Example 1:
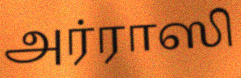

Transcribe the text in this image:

அர்ராஸி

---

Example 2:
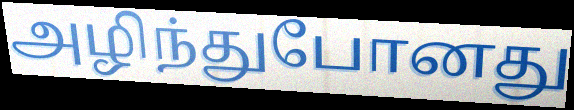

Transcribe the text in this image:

அழிந்துபோனது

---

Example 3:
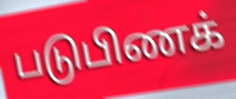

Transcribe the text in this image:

படுபிணக்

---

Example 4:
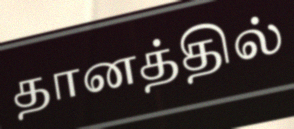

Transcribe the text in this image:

தானத்தில்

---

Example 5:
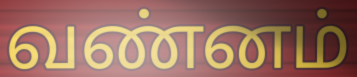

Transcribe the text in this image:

வண்னம்